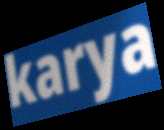
karya